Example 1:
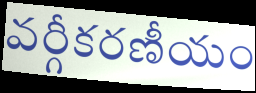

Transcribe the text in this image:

వర్గీకరణీయం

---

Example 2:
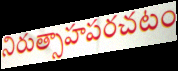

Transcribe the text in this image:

నిరుత్సాహపరచటం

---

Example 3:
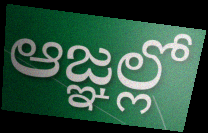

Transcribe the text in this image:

ఆజ్ఞల్లో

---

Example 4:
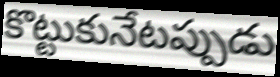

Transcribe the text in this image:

కొట్టుకునేటప్పుడు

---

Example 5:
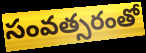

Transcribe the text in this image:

సంవత్సరంతో